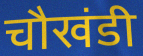
चौखंडी